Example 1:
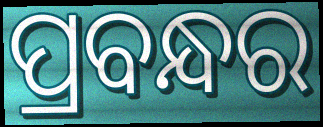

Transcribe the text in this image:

ପ୍ରବନ୍ଧର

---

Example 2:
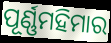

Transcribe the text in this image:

ପୂର୍ଣ୍ଣମହିମାର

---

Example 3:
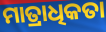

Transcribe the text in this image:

ମାତ୍ରାଧିକତା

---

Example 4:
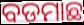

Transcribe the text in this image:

ବଡମାଛ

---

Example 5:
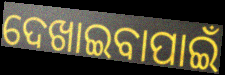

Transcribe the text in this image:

ଦେଖାଇବାପାଇଁ